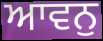
ਆਵਨੁ